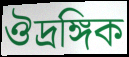
ঔদ্রঙ্গিক